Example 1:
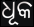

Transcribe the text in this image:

ଧୂକ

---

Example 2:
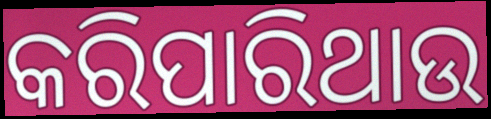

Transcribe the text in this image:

କରିପାରିଥାଉ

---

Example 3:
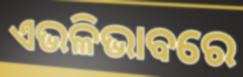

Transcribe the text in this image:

ଏଭଳିଭାବରେ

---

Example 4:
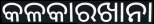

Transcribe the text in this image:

କଳକାରଖାନା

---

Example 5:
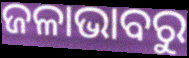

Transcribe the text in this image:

ଜଳାଭାବରୁ